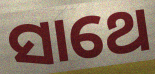
ସାଥେ